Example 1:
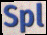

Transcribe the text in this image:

Spl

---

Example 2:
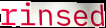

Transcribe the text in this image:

rinsed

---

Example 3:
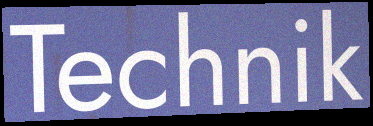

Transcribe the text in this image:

Technik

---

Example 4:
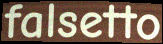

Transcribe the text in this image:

falsetto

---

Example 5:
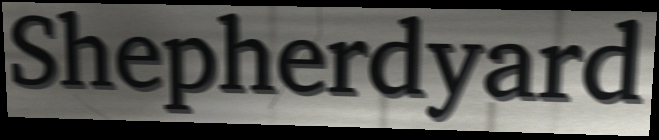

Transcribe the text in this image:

Shepherdyard